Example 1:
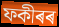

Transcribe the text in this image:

ফকীৰৰ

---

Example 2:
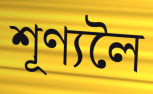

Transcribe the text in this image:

শূণ্যলৈ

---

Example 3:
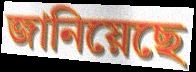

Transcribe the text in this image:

জানিয়েছে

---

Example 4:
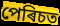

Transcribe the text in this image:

পেৰিচত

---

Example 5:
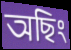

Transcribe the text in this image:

অছিং